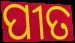
ପୀତ